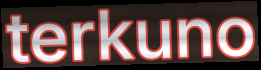
terkuno